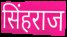
सिंहराज